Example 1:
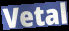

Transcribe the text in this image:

Vetal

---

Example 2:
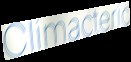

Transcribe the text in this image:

Climacteric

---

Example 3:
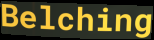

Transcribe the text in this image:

Belching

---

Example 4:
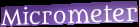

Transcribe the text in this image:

Micrometer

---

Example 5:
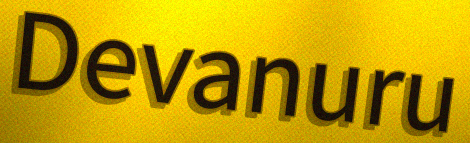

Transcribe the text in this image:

Devanuru